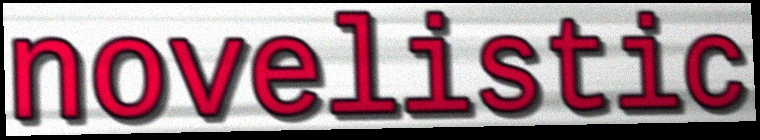
novelistic